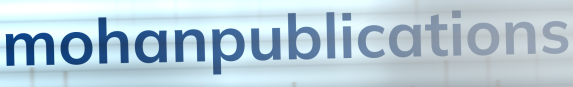
mohanpublications